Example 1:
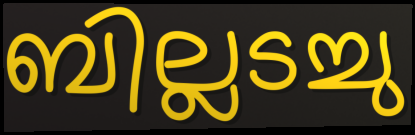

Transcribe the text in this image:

ബില്ലടച്ചു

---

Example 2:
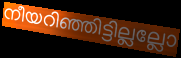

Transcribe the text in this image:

നീയറിഞ്ഞിട്ടില്ലല്ലോ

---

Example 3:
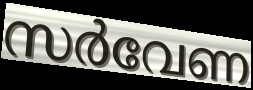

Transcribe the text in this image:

സർവേണ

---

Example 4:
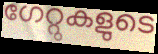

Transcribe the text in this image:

ഗേറ്റുകളുടെ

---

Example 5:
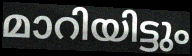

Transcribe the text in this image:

മാറിയിട്ടും